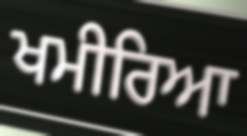
ਖਮੀਰਿਆ